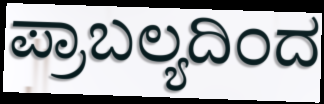
ಪ್ರಾಬಲ್ಯದಿಂದ